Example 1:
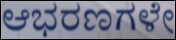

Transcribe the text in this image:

ಆಭರಣಗಳೇ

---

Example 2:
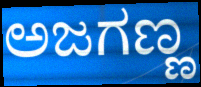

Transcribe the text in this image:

ಅಜಗಣ್ಣ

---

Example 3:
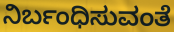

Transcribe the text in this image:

ನಿರ್ಬಂಧಿಸುವಂತೆ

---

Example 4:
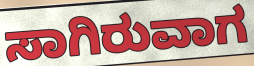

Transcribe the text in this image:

ಸಾಗಿರುವಾಗ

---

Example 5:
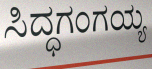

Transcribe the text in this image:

ಸಿದ್ಧಗಂಗಯ್ಯ